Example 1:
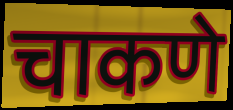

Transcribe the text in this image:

चाकणे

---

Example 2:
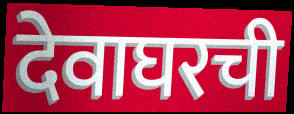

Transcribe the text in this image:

देवाघरची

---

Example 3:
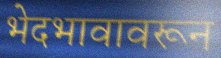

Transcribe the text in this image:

भेदभावावरून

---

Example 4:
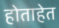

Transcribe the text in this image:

होताहेत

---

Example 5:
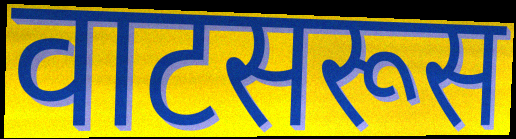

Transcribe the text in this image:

वाटसरूस